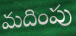
మదింపు